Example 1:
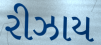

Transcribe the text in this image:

રીઝાય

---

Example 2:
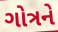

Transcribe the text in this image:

ગોત્રને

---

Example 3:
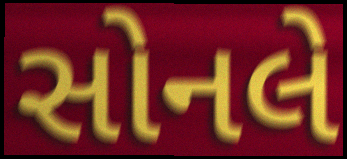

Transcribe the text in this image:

સોનલે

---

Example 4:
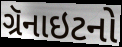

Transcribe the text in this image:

ગ્રૅનાઇટનો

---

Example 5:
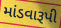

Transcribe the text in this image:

માંડવારૂપી